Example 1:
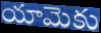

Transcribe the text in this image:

యామెకు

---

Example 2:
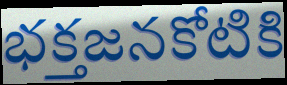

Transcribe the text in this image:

భక్తజనకోటికి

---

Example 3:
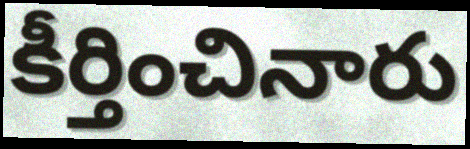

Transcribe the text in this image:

కీర్తించినారు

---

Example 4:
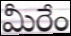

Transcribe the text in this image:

మీరేం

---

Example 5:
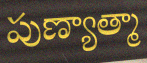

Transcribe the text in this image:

పుణ్యాత్మా